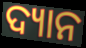
ଦ୍ୟାନ